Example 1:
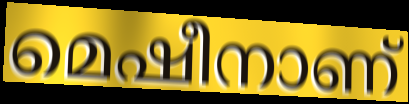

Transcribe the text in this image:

മെഷീനാണ്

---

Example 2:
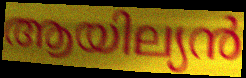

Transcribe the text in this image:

ആയില്യൻ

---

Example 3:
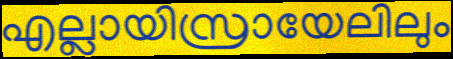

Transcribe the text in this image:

എല്ലായിസ്രായേലിലും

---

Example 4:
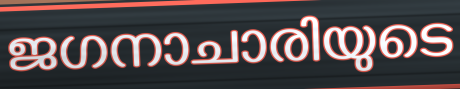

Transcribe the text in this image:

ജഗനാചാരിയുടെ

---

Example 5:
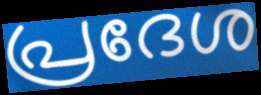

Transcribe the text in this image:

പ്രദേശ